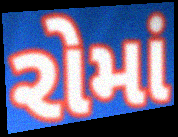
રોમાં